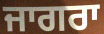
ਜਾਗਰਾ